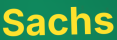
Sachs